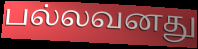
பல்லவனது